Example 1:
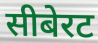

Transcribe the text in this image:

सीबेरट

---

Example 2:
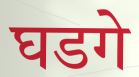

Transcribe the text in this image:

घडगे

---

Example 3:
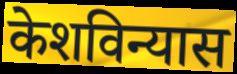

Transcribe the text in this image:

केशविन्यास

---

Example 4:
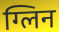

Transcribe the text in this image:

ग्लिन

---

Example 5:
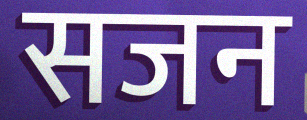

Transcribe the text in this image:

सजन